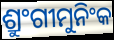
ଶ୍ରୁଂଗୀମୁନିଂକ